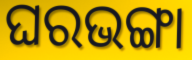
ଘରଭଙ୍ଗା